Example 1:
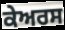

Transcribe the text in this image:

ਕੇਅਰਸ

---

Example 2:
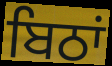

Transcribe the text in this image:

ਬਿਠਾਂ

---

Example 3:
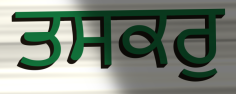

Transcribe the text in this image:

ਤਸਕਰੁ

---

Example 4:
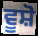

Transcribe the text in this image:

ਵੂਸ਼ੋ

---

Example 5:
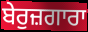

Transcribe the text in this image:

ਬੇਰੁਜ਼ਗਾਰਾ